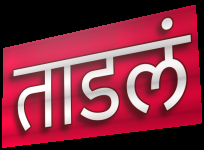
ताडलं